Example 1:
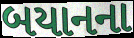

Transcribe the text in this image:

બયાનના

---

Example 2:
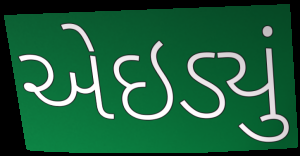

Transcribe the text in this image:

એઇડ્યું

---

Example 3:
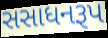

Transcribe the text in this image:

સસાધનરૂપ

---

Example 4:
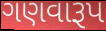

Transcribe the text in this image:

ગણવારૂપ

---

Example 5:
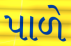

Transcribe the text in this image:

પાળે